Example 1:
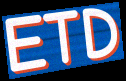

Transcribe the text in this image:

ETD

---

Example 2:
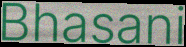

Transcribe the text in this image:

Bhasani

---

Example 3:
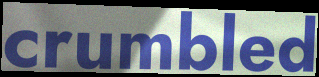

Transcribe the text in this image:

crumbled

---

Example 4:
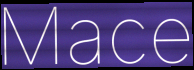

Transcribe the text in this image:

Mace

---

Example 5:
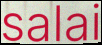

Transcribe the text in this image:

salai